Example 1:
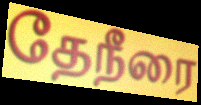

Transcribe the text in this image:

தேநீரை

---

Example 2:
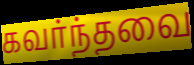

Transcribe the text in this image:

கவர்ந்தவை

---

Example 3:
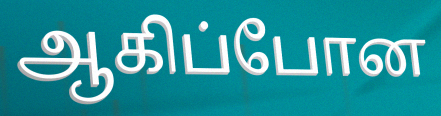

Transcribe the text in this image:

ஆகிப்போன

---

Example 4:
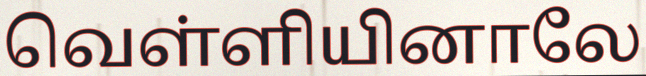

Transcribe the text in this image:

வெள்ளியினாலே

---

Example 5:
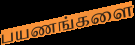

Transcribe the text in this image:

பயணங்களை